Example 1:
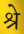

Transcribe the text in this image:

श्रे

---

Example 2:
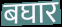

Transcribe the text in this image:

बघार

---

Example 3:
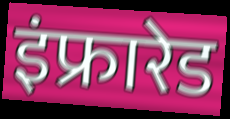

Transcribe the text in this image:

इंफ्रारेड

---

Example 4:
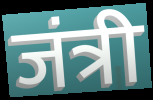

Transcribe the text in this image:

जंत्री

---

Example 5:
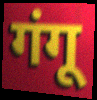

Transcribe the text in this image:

गंगू